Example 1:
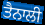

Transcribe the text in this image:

ਤੈਨਾਲੀ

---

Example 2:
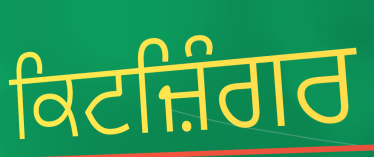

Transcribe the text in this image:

ਕਿਟਜ਼ਿੰਗਰ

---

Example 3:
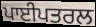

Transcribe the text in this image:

ਪਾਈਪਤਰਲ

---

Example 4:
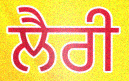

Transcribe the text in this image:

ਲੈਰੀ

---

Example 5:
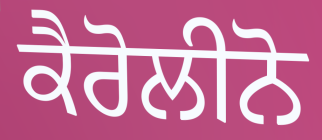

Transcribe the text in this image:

ਕੈਰੋਲੀਨੋ